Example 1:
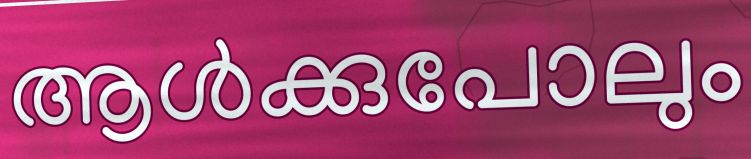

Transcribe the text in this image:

ആൾക്കുപോലും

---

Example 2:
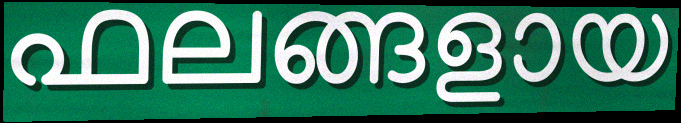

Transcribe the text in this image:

ഫലങ്ങളായ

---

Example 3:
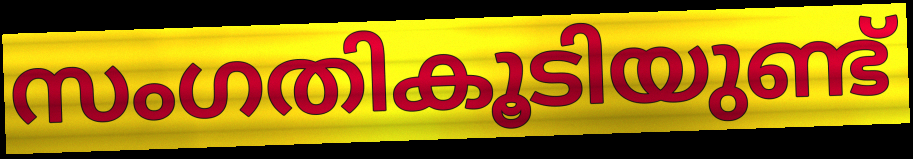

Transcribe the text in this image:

സംഗതികൂടിയുണ്ട്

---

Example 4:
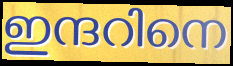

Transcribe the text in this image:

ഇന്ദറിനെ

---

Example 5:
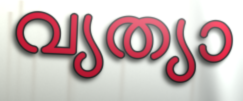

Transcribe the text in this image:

വ്യത്യാ